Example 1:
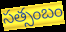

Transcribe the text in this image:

సత్సంబం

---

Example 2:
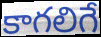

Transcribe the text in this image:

కాగలిగే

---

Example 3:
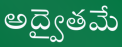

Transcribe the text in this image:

అద్వైతమే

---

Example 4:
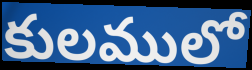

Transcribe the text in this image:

కులములో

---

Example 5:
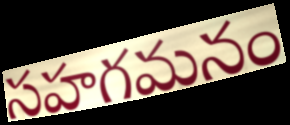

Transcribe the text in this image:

సహగమనం